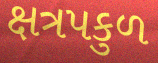
ક્ષત્રપકુળ